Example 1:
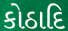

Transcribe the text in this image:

કોઠાદિ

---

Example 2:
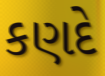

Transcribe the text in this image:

કણદે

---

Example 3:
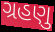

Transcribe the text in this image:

ગ્રહણુ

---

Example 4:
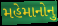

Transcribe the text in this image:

મહેમાનોનુ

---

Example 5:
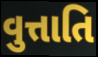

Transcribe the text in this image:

વુત્તાતિ